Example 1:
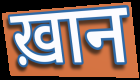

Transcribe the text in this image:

ख़ान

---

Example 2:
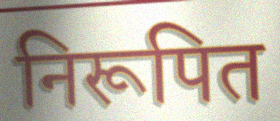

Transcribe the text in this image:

निरूपित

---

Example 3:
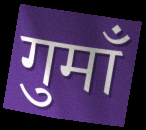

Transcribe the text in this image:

गुमाँ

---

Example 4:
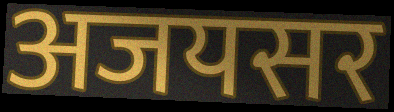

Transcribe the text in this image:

अजयसर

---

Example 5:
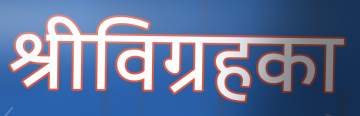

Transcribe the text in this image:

श्रीविग्रहका